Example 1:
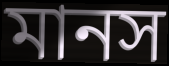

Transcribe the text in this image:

মানস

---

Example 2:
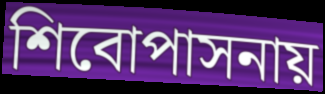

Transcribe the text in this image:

শিবোপাসনায়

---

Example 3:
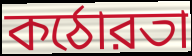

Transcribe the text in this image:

কঠোরতা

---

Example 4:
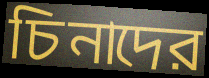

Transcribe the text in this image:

চিনাদের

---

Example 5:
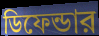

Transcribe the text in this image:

ডিফেন্ডার